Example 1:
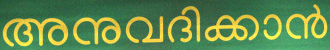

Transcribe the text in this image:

അനുവദിക്കാൻ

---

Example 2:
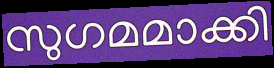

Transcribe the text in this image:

സുഗമമാക്കി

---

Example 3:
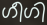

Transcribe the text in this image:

ഗീഗി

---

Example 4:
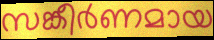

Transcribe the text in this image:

സങ്കീർണമായ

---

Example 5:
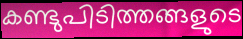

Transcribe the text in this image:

കണ്ടുപിടിത്തങ്ങളുടെ